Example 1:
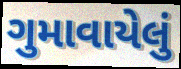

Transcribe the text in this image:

ગુમાવાયેલું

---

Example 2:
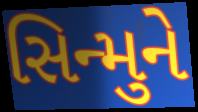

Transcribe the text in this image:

સિન્મુને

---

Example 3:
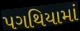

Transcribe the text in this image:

પગથિયામાં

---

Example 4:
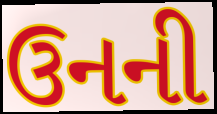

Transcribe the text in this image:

ઉનની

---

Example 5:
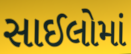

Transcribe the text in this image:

સાઈલોમાં